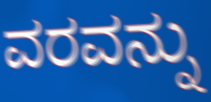
ವರವನ್ನು